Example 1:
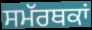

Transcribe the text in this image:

ਸਮੱਰਥਕਾਂ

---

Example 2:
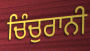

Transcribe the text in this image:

ਚਿੰਚੁਰਾਨੀ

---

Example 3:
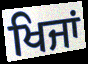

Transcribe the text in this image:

ਖਿਜਾਂ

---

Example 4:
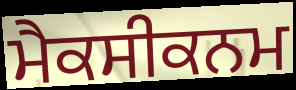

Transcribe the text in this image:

ਮੈਕਸੀਕਨਮ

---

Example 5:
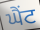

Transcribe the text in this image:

ਘੈਂਟ